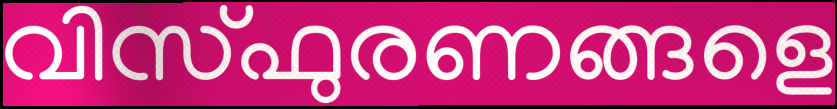
വിസ്ഫുരണങ്ങളെ